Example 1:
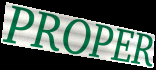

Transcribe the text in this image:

PROPER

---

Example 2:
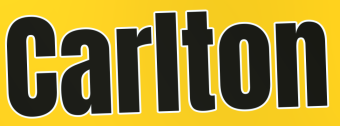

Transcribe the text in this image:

Carlton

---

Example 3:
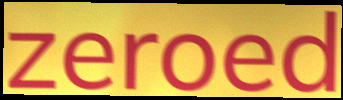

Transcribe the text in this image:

zeroed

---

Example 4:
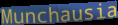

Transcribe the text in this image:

Munchausia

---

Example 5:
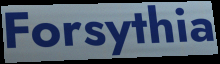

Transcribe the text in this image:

Forsythia